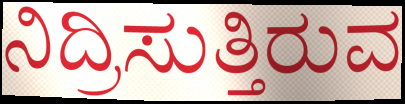
ನಿದ್ರಿಸುತ್ತಿರುವ